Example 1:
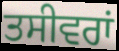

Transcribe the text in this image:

ਤਸੀਵਰਾਂ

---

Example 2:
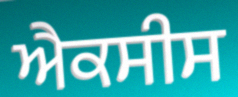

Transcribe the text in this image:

ਐਕਸੀਸ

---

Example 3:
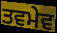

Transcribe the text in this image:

ਤਵਮੇਵ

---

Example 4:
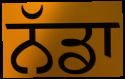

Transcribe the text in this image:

ਨੱਡਾ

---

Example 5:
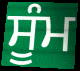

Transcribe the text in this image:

ਸੂੰਮ